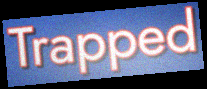
Trapped